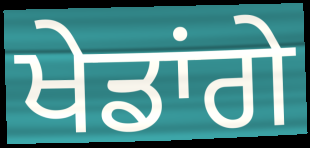
ਖੇਡਾਂਗੇ